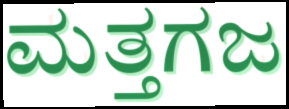
ಮತ್ತಗಜ